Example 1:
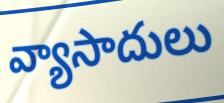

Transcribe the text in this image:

వ్యాసాదులు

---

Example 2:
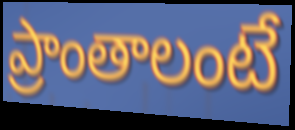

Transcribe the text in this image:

ప్రాంతాలంటే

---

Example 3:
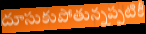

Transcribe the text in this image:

దూసుకుపోతున్నప్పటికీ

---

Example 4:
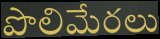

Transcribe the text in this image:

పొలిమేరలు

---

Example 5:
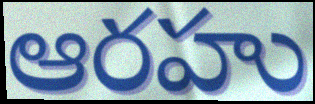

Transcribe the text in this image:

ఆరహు